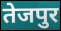
तेजपुर